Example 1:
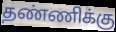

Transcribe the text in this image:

தண்ணிக்கு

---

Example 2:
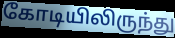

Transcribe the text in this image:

கோடியிலிருந்து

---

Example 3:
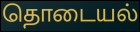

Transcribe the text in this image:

தொடையல்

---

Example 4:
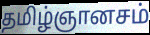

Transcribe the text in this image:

தமிழ்ஞானசம்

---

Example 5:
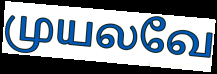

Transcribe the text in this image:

முயலவே